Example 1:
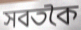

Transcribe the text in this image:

সবতকৈ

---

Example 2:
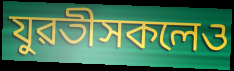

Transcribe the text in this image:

যুৱতীসকলেও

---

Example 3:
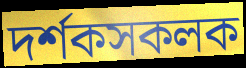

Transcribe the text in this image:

দৰ্শকসকলক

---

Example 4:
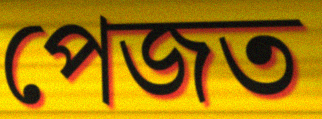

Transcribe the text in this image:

পেজত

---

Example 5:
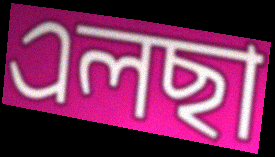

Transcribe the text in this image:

এলছা